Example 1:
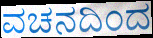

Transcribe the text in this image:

ವಚನದಿಂದ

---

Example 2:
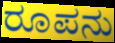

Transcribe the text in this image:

ರೂಪನು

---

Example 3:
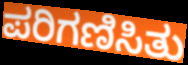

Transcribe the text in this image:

ಪರಿಗಣಿಸಿತು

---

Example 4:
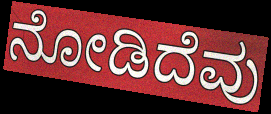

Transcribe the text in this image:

ನೋಡಿದೆವು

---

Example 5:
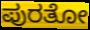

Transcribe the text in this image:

ಪುರತೋ